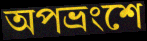
অপভ্রংশে